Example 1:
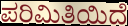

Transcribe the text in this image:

ಪರಿಮಿತಿಯಿದೆ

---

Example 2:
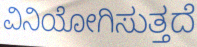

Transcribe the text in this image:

ವಿನಿಯೋಗಿಸುತ್ತದೆ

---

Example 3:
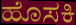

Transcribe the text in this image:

ಹೊಸಕಿ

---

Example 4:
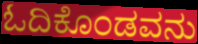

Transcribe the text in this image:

ಓದಿಕೊಂಡವನು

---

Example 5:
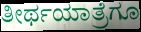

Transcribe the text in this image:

ತೀರ್ಥಯಾತ್ರೆಗೂ